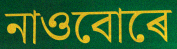
নাওবোৰে